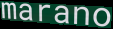
marano